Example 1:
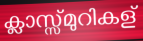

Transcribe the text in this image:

ക്ലാസ്സ്മുറികള്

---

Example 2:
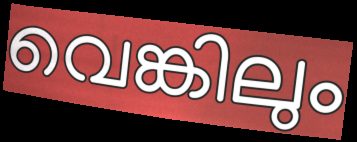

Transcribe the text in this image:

വെങ്കിലും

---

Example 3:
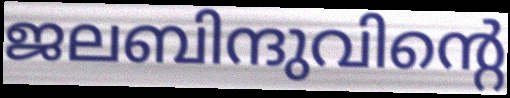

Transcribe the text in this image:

ജലബിന്ദുവിന്റെ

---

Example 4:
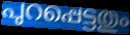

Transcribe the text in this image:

പുറപ്പെട്ടതും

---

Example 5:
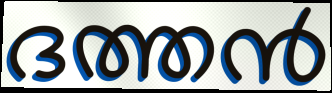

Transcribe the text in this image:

ദത്തൻ